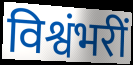
विश्वंभरीं